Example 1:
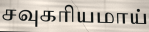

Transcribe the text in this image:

சவுகரியமாய்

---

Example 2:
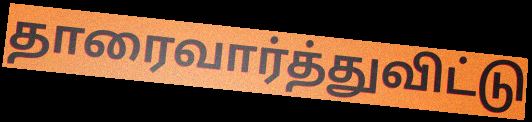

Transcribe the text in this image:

தாரைவார்த்துவிட்டு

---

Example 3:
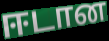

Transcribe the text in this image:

ஈடான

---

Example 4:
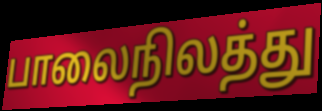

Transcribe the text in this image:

பாலைநிலத்து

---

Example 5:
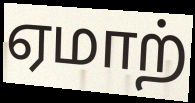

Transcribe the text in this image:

ஏமாற்